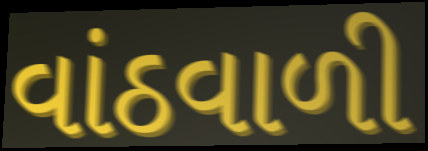
વાંઠવાળી